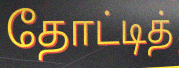
தோட்டித்